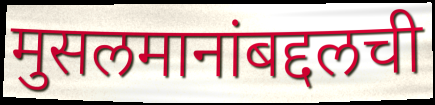
मुसलमानांबद्दलची